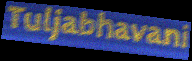
Tuljabhavani